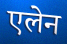
एलेन